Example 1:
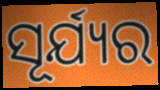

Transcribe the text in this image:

ସୂର୍ଯ୍ୟର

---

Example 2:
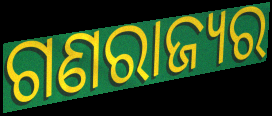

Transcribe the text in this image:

ଗଣରାଜ୍ୟର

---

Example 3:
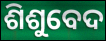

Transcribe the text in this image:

ଶିଶୁବେଦ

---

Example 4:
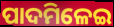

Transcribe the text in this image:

ପାଦମିଳେଇ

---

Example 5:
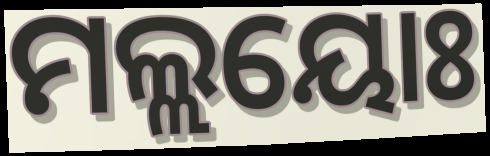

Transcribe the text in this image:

ମଲ୍ଲୟୋଃ